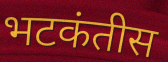
भटकंतीस